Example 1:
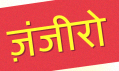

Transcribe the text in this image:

ज़ंजीरो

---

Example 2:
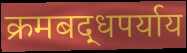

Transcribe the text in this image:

क्रमबद्धपर्याय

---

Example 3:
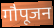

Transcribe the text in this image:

गौपूजन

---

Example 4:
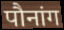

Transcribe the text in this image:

पौनांग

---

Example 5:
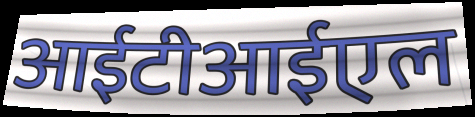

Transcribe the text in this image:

आईटीआईएल